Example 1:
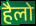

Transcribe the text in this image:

हैलो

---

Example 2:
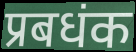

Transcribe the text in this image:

प्रबधंक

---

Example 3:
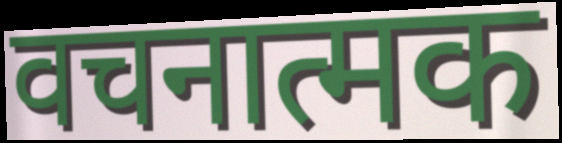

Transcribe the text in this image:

वचनात्मक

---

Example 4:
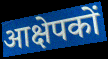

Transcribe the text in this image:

आक्षेपकों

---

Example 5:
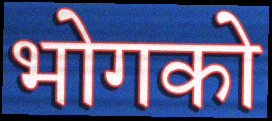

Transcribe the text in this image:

भोगको